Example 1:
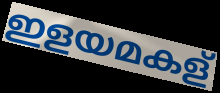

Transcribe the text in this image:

ഇളയമകള്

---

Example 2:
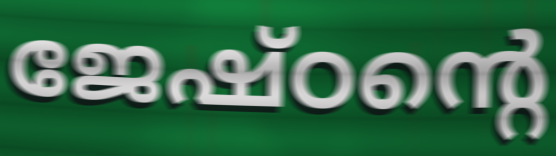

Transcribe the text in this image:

ജേഷ്ഠന്റെ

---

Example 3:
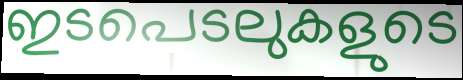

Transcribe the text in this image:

ഇടപെടലുകളുടെ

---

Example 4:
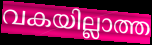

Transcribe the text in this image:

വകയില്ലാത്ത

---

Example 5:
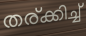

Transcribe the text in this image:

തര്ക്കിച്ച്